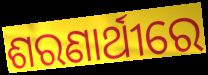
ଶରଣାର୍ଥୀରେ